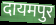
दायमपुर